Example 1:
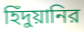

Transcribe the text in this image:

হিঁদুয়ানির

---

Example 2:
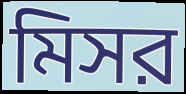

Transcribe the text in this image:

মিসর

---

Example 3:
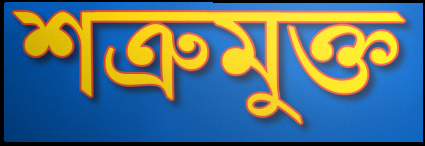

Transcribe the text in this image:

শত্রুমুক্ত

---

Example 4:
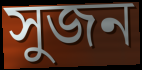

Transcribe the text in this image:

সুজন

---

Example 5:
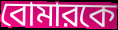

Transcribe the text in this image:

বোমারকে